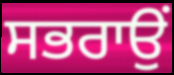
ਸਭਰਾਉਂ